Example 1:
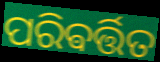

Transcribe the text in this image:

ପରିଵର୍ତ୍ତିତ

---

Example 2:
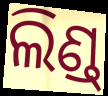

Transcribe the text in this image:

ଲିଣ୍ଡ୍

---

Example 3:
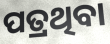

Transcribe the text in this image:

ପତ୍ରଥିବା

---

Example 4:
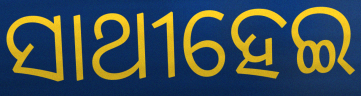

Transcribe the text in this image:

ସାଥୀହେଇ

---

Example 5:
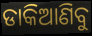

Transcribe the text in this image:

ଡାକିଆଣିବୁ